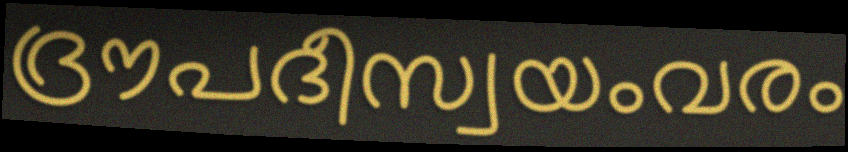
ദ്രൗപദീസ്വയംവരം